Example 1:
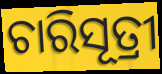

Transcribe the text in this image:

ଚାରିସୂତ୍ରୀ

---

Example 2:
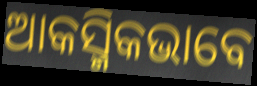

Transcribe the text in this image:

ଆକସ୍ମିକଭାବେ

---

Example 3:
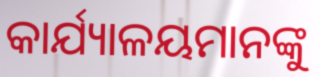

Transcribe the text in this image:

କାର୍ଯ୍ୟାଳୟମାନଙ୍କୁ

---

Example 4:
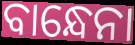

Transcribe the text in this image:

ବାନ୍ଧେନା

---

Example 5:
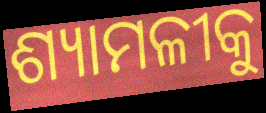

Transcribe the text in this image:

ଶ୍ୟାମଳୀକୁ